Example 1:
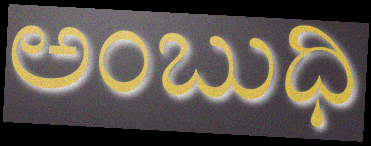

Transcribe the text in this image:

ಅಂಬುಧಿ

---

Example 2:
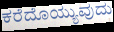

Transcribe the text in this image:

ಕರೆದೊಯ್ಯುವುದು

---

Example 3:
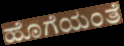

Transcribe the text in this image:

ಹೊಗೆಯಂತೆ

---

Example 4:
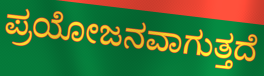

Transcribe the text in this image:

ಪ್ರಯೋಜನವಾಗುತ್ತದೆ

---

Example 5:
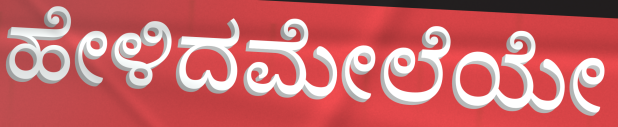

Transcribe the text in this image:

ಹೇಳಿದಮೇಲೆಯೇ